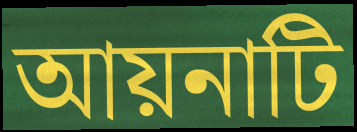
আয়নাটি